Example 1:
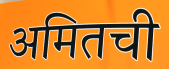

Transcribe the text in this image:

अमितची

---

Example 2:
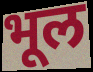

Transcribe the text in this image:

भूल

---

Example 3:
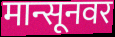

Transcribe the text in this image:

मान्सूनवर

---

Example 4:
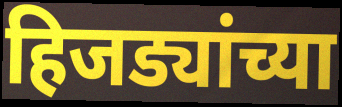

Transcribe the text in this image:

हिजड्यांच्या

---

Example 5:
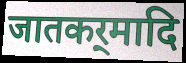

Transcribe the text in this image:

जातकर्मादि